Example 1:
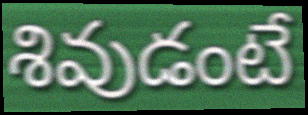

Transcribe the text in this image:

శివుడంటే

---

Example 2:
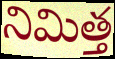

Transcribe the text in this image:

నిమిత్త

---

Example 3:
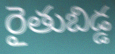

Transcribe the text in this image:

రైతుబిడ్డ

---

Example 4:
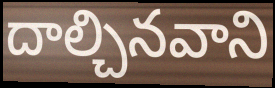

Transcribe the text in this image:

దాల్చినవాని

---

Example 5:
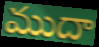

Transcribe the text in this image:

ముదా